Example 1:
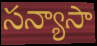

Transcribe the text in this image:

సన్యాసా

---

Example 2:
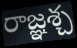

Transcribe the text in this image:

రాజ్ఞశ్చ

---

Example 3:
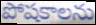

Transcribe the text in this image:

పోషకాలను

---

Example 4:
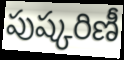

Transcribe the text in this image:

పుష్కరిణీ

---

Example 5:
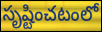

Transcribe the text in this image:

సృష్టించటంలో